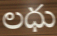
లధు